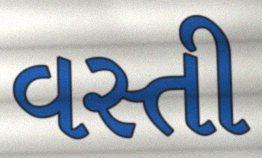
વસ્તી